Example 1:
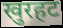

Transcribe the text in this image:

खुरहट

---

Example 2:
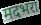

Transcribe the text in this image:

मदभरा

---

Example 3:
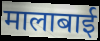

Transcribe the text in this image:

मालाबाई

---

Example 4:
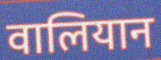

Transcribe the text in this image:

वालियान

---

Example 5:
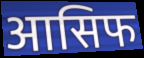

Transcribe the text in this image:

आसिफ